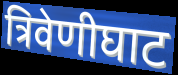
त्रिवेणीघाट